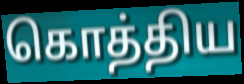
கொத்திய